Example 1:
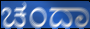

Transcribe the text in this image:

ಚಂದಾ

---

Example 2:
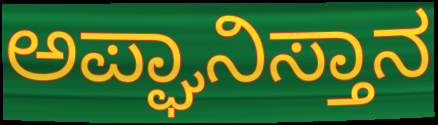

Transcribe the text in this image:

ಅಪ್ಘಾನಿಸ್ತಾನ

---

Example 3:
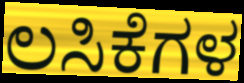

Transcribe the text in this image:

ಲಸಿಕೆಗಳ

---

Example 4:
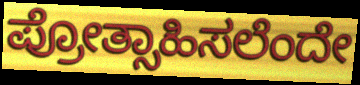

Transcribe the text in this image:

ಪ್ರೋತ್ಸಾಹಿಸಲೆಂದೇ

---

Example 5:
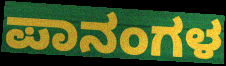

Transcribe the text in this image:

ಪಾನಂಗಳ